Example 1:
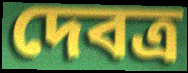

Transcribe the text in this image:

দেবত্র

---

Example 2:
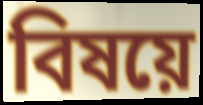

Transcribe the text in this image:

বিষয়ে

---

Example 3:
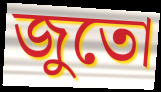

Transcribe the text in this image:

জুতো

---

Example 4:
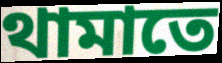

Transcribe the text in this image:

থামাতে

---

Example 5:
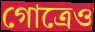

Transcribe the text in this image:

গোত্রেও